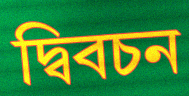
দ্বিবচন